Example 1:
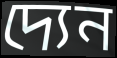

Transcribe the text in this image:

দ্যেন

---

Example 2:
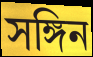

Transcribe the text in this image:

সঙ্গিন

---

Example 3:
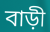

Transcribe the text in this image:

বাড়ী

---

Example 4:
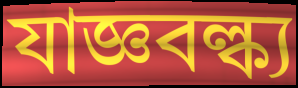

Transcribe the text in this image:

যাজ্ঞবল্ক্য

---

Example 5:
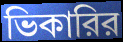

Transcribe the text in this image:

ভিকারির